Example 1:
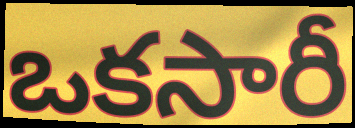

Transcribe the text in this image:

ఒకసారీ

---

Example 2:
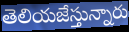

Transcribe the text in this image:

తెలియజేస్తున్నారు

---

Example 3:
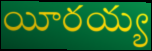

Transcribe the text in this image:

యీరయ్య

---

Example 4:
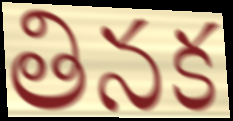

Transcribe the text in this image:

తినక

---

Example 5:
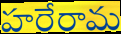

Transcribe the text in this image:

హరేరామ